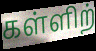
கள்ளிற்